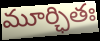
మూర్ఛితః